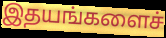
இதயங்களைச்